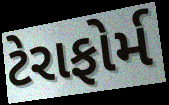
ટેરાફોર્મ